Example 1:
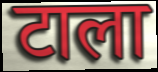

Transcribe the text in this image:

टाला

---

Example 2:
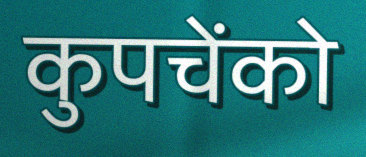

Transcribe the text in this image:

कुपचेंको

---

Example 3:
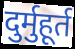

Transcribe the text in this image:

दुर्मुहूर्त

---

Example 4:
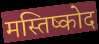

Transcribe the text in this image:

मस्तिष्कोद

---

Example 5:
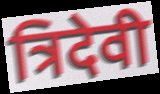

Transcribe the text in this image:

त्रिदेवी